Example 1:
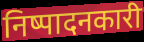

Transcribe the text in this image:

निष्पादनकारी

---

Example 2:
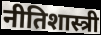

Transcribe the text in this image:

नीतिशास्त्री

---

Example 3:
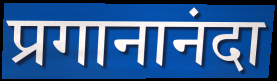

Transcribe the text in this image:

प्रगानानंदा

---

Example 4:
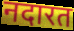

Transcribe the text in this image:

नदारत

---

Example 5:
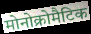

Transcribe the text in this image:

मोनोक्रोमैटिक